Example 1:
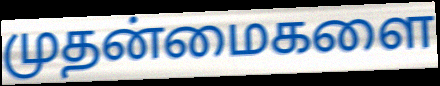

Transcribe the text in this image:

முதன்மைகளை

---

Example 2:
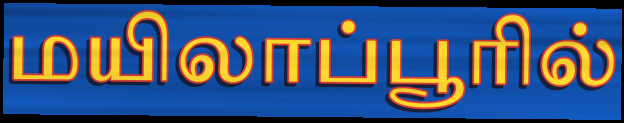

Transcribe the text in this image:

மயிலாப்பூரில்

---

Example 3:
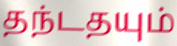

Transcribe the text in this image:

தந்டதயும்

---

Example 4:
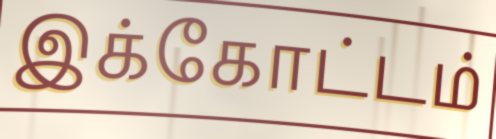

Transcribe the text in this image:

இக்கோட்டம்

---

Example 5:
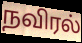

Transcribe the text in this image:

நவிரல்